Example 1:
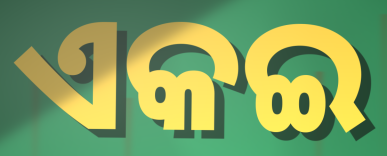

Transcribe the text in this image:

ଏକଇ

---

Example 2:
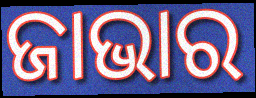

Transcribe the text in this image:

ଜାଭାର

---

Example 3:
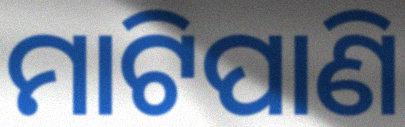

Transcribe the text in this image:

ମାଟିପାଣି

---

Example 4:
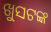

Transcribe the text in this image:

ଖୁସଟଙ୍କ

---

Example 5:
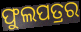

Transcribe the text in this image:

ଫୁଲପତ୍ରର